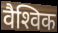
वैश्‍विक